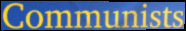
Communists